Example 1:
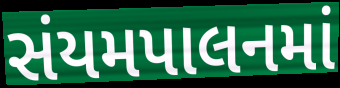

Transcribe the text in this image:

સંયમપાલનમાં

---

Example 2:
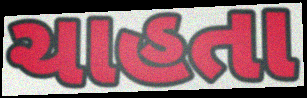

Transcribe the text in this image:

ચાહતા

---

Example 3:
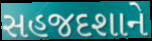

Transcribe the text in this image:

સહજદશાને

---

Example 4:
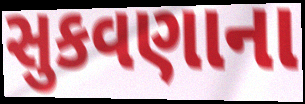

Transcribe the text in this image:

સુકવણાના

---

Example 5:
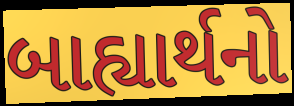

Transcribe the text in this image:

બાહ્યાર્થનો